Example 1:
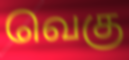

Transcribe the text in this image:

வெகு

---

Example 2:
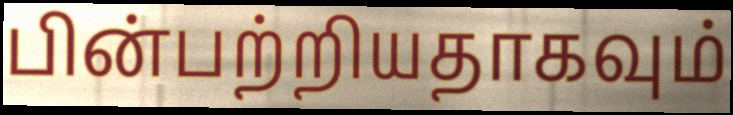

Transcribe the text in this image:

பின்பற்றியதாகவும்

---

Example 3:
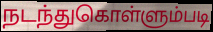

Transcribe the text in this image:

நடந்துகொள்ளும்படி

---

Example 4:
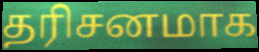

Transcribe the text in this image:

தரிசனமாக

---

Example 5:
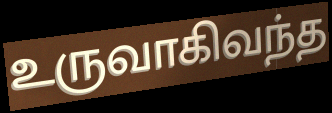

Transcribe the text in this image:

உருவாகிவந்த